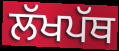
ਲੱਖਪੱਥ